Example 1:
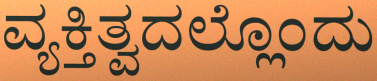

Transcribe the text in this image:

ವ್ಯಕ್ತಿತ್ವದಲ್ಲೊಂದು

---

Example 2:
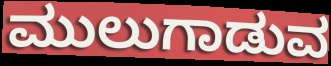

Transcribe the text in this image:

ಮುಲುಗಾಡುವ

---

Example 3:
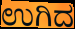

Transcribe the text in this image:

ಉಗಿದ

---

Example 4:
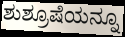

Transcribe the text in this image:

ಶುಶ್ರೂಷೆಯನ್ನೂ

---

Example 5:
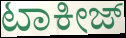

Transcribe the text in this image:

ಟಾಕೀಜ್